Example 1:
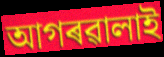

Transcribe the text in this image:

আগৰৱালাই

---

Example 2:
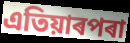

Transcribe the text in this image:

এতিয়াৰপৰা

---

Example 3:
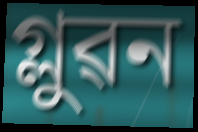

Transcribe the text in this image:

গ্লুৱন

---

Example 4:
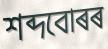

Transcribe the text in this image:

শব্দবোৰৰ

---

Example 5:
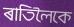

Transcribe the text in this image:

ৰাতিলৈকে